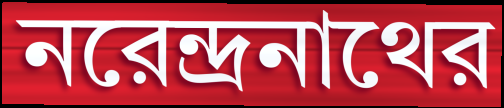
নরেন্দ্রনাথের